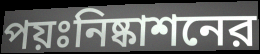
পয়ঃনিষ্কাশনের